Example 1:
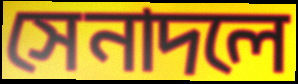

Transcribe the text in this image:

সেনাদলে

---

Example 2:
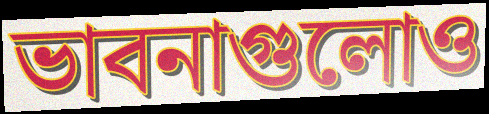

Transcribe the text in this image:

ভাবনাগুলোও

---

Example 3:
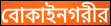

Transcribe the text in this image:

বোকাইনগরীর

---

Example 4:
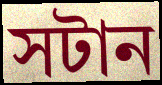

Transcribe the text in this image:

সটান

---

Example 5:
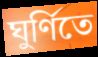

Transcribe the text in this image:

ঘুর্ণিতে